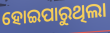
ହୋଇପାରୁଥିଲା